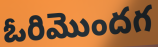
ఓరిమొందగ